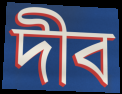
দীব